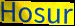
Hosur